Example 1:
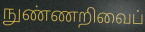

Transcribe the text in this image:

நுண்ணறிவைப்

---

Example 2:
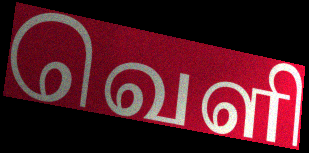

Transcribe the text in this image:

வெளி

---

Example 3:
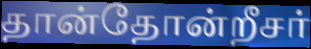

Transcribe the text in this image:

தான்தோன்றீசர்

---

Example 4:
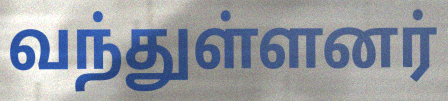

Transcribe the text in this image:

வந்துள்ளனர்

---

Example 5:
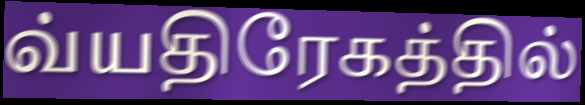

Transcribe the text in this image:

வ்யதிரேகத்தில்